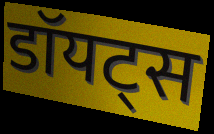
डॉयट्स